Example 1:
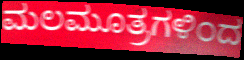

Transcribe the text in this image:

ಮಲಮೂತ್ರಗಳಿಂದ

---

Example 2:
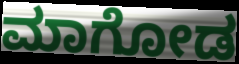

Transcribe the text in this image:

ಮಾಗೋಡ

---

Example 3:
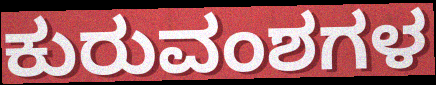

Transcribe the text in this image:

ಕುರುವಂಶಗಳ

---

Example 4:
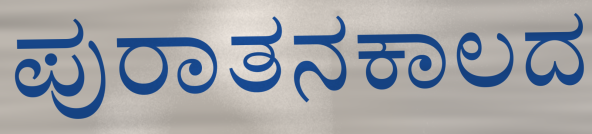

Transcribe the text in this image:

ಪುರಾತನಕಾಲದ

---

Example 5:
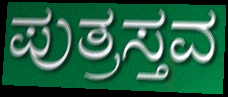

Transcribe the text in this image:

ಪುತ್ರಸ್ತವ